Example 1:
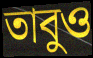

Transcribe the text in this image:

তাবুও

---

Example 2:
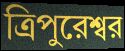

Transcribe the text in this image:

ত্রিপুরেশ্বর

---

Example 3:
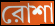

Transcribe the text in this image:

রোশা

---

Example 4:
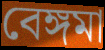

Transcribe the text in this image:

বেঙ্গমা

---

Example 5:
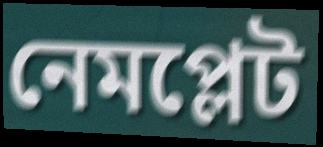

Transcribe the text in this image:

নেমপ্লেট